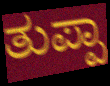
ತುಪ್ಪಾ